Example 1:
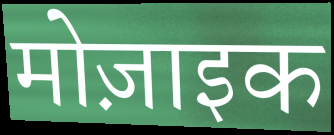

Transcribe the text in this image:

मोज़ाइक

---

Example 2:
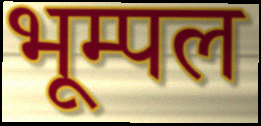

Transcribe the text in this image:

भूम्पल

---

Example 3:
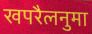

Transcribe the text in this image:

खपरैलनुमा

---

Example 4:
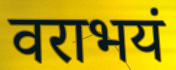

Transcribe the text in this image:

वराभयं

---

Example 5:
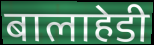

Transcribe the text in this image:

बालाहेडी